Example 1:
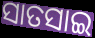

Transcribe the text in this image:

ସାତସାଇ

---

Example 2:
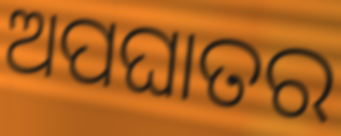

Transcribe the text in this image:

ଅପଘାତର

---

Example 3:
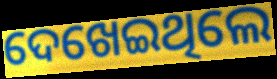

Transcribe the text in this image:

ଦେଖେଇଥିଲେ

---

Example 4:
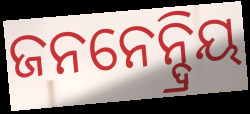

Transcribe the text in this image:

ଜନନେନ୍ଦ୍ରିୟ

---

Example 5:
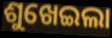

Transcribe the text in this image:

ଶୁଖେଇଲା